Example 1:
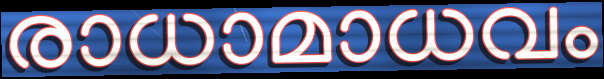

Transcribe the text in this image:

രാധാമാധവം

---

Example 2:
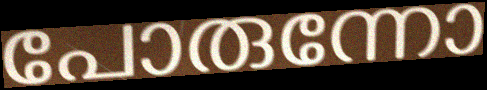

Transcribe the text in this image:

പോരുന്നോ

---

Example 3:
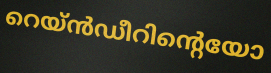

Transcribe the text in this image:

റെയ്ൻഡീറിന്റെയോ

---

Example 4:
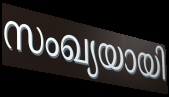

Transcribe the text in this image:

സംഖ്യയായി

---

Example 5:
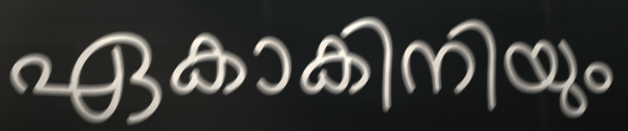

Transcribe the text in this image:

ഏകാകിനിയും